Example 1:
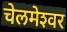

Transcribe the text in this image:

चेलमेश्‍वर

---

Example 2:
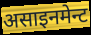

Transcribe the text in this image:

असाइनमेन्ट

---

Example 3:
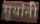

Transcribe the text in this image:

सुयांनी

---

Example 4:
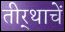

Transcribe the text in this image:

तीर्थाचें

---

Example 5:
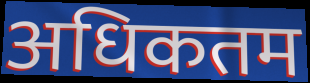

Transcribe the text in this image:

अधिकतम